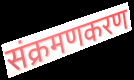
संक्रमणकरण